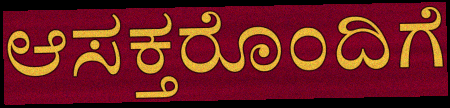
ಆಸಕ್ತರೊಂದಿಗೆ